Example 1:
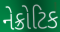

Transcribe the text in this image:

નેક્રોટિક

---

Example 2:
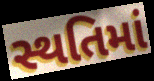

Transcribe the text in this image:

સ્થતિમાં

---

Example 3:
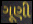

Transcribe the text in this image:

ગૂણી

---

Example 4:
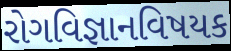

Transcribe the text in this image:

રોગવિજ્ઞાનવિષયક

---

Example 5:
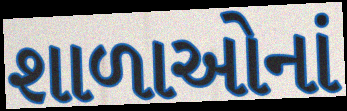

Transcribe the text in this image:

શાળાઓનાં